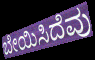
ಬೇಯಿಸಿದೆವು